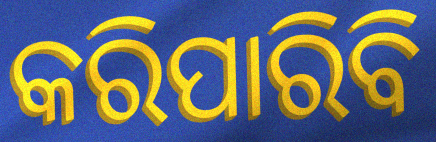
କରିପାରିବି